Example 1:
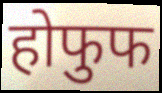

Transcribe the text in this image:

होफुफ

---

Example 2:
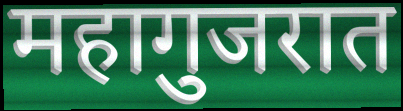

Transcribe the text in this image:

महागुजरात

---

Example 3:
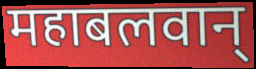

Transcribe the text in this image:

महाबलवान्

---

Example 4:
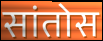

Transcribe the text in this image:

सांतोस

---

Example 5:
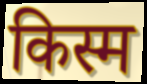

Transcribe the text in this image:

किस्‍म